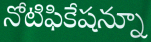
నోటిఫికేషన్నూ